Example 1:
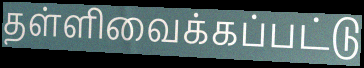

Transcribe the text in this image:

தள்ளிவைக்கப்பட்டு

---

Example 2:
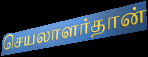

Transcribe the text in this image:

செயலாளர்தான்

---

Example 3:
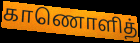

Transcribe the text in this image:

காணொளித்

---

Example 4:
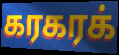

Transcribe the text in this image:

கரகரக்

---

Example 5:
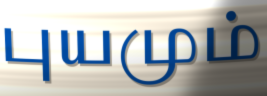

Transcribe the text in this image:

புயமும்